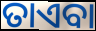
ତାଏବା